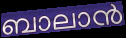
ബാലാൻ